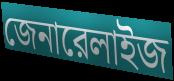
জেনারেলাইজ